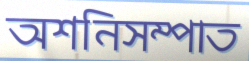
অশনিসম্পাত